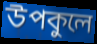
উপকুলে